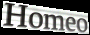
Homeo